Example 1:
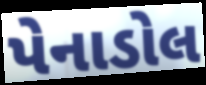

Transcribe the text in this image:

પેનાડોલ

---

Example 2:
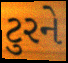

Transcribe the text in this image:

ટુરને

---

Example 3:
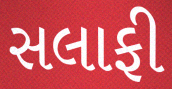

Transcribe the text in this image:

સલાફી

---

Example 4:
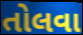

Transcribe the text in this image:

તોલવા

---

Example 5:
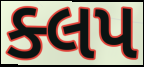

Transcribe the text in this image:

ક્લપ